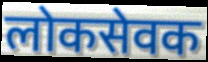
लोकसेवक